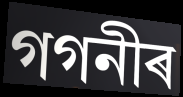
গগনীৰ